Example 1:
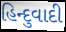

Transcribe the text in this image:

હિન્દુવાદી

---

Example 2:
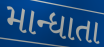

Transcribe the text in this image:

માન્ધાતા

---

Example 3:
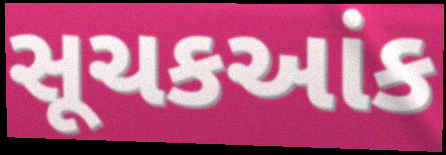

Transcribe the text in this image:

સૂચકઆંક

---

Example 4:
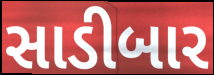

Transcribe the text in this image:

સાડીબાર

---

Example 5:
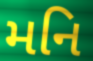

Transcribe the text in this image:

મનિ